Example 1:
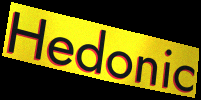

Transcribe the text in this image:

Hedonic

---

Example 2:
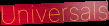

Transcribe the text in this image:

Universals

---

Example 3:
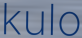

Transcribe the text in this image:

kulo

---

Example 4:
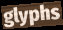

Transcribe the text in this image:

glyphs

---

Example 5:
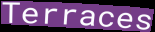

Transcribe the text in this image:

Terraces